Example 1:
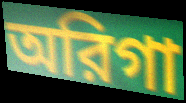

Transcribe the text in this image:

অরিগা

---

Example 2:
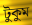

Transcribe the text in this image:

টুকুম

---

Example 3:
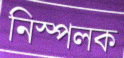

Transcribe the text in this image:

নিস্পলক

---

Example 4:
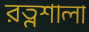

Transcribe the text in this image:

রত্নশালা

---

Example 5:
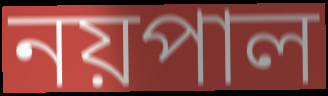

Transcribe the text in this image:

নয়পাল